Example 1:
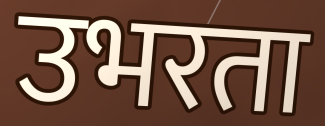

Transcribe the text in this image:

उभरता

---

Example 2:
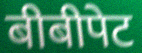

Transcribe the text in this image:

बीबीपेट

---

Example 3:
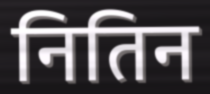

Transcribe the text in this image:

नितिन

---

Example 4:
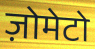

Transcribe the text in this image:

ज़ोमेटो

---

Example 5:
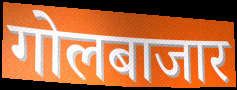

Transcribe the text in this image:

गोलबाजार